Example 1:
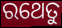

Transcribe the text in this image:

ରଥେତୁ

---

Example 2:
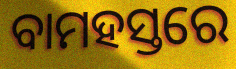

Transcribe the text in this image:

ବାମହସ୍ତରେ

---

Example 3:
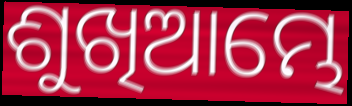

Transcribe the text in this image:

ଶୁଖିଆମ୍ଭେ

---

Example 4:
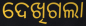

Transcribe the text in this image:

ଦେଖିଗଲା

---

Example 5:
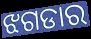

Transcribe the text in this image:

ଝଗଡାର